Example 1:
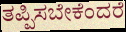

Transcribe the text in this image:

ತಪ್ಪಿಸಬೇಕೆಂದರೆ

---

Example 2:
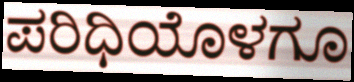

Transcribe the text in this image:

ಪರಿಧಿಯೊಳಗೂ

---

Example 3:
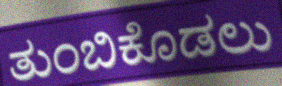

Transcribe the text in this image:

ತುಂಬಿಕೊಡಲು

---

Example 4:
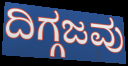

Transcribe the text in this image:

ದಿಗ್ಗಜವು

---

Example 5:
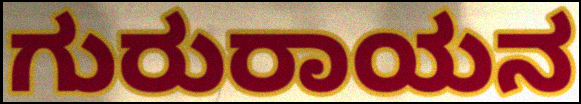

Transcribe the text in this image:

ಗುರುರಾಯನ